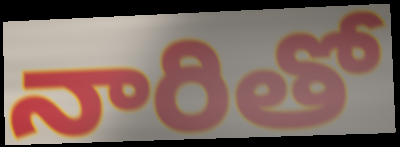
నారితో